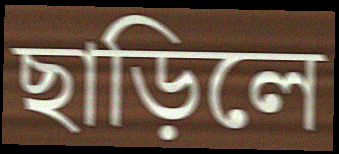
ছাড়িলে